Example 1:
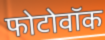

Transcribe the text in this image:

फोटोवॉक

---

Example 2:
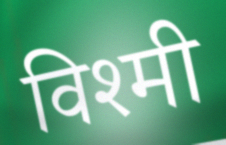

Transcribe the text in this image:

विश्मी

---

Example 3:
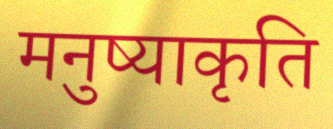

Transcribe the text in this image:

मनुष्याकृति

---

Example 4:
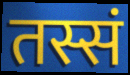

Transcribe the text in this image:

तस्सं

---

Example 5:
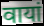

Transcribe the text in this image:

वायां